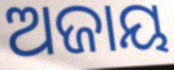
ଅଜାୟ